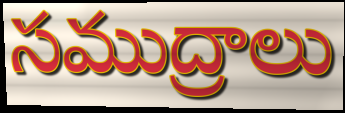
సముద్రాలు